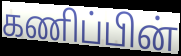
கணிப்பின்